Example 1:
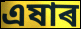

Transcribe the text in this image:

এষাৰ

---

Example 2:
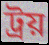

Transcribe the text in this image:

ট্ৰয়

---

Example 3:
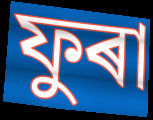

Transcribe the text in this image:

ফুৰা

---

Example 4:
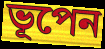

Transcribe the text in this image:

ভূপেন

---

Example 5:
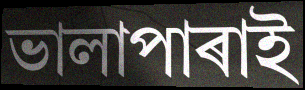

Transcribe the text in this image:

ভালাপাৰাই